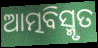
ଆତ୍ମବିସ୍ମୃତ